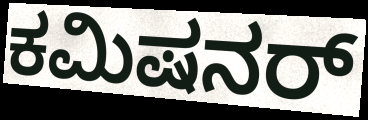
ಕಮಿಷನರ್